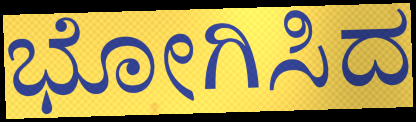
ಭೋಗಿಸಿದ